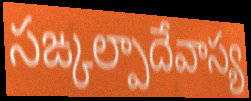
సఙ్కల్పాదేవాస్య